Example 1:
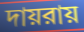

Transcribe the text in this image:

দায়রায়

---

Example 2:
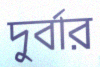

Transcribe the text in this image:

দুর্বার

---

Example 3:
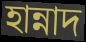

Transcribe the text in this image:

হান্নাদ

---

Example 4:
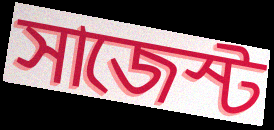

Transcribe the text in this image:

সাজেস্ট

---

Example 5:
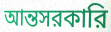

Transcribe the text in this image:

আন্তসরকারি